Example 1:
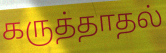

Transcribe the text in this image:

கருத்தாதல்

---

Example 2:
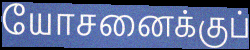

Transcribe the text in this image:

யோசனைக்குப்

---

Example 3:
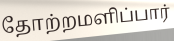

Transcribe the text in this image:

தோற்றமளிப்பார்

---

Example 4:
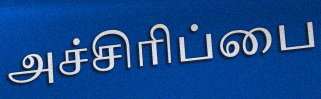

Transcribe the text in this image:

அச்சிரிப்பை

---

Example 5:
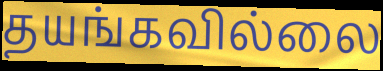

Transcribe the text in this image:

தயங்கவில்லை